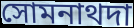
সোমনাথদা